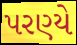
પરણ્યે